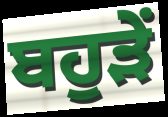
ਬਹੁੜੇਂ